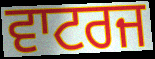
ਵਾਟਰਜ